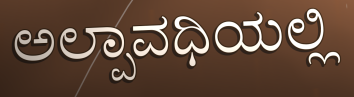
ಅಲ್ಪಾವಧಿಯಲ್ಲಿ